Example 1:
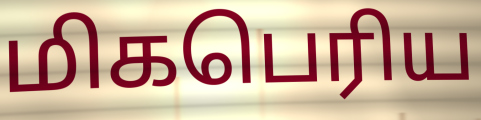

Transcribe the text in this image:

மிகபெரிய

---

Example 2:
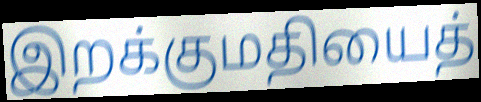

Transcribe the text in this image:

இறக்குமதியைத்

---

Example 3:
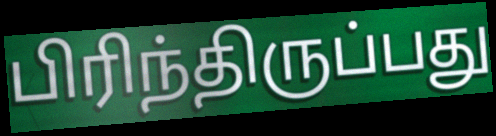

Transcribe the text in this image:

பிரிந்திருப்பது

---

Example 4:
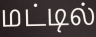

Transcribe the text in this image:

மட்டில்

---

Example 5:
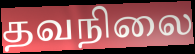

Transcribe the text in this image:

தவநிலை